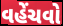
વહેંચવો